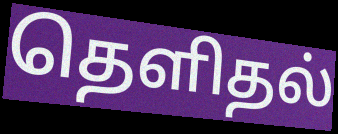
தெளிதல்